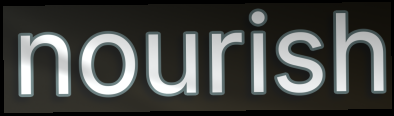
nourish